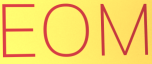
EOM